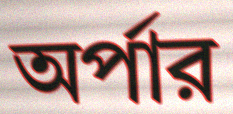
অর্পার